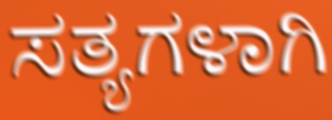
ಸತ್ಯಗಳಾಗಿ